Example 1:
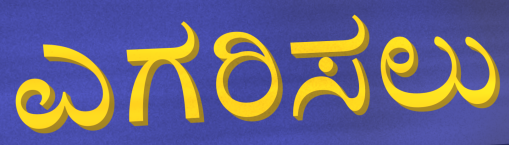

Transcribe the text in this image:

ಎಗರಿಸಲು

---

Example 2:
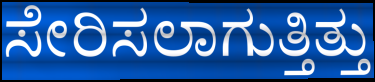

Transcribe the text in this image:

ಸೇರಿಸಲಾಗುತ್ತಿತ್ತು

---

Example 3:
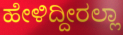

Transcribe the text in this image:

ಹೇಳಿದ್ದೀರಲ್ಲಾ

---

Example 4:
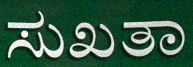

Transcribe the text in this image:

ಸುಖತಾ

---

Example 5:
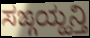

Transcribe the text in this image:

ಸಙ್ಗಯ್ಹನ್ತಿ